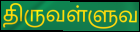
திருவள்ளுவ